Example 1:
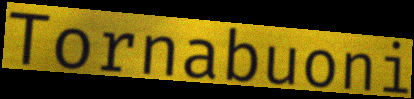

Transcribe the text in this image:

Tornabuoni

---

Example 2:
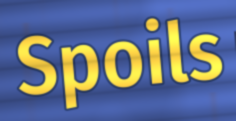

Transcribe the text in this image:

Spoils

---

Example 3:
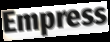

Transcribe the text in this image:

Empress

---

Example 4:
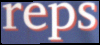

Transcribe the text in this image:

reps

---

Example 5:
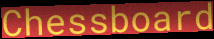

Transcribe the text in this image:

Chessboard